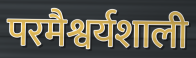
परमैश्वर्यशाली